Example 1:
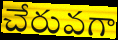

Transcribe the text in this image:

చేరువగా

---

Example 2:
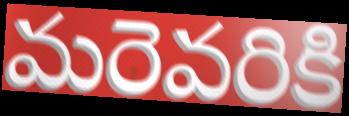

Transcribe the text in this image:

మరెవరికి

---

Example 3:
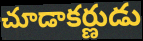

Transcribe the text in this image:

చూడాకర్ణుడు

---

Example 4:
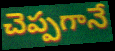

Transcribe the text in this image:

చెప్పగానే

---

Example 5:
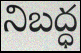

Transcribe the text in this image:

నిబద్ధ